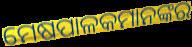
ମେଷପାଳକମାନଙ୍କର